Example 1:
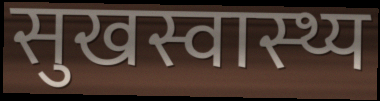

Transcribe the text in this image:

सुखस्वास्थ्य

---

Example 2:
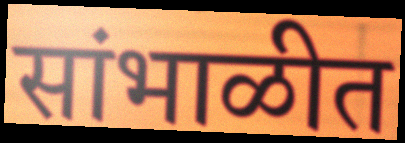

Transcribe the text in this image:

सांभाळीत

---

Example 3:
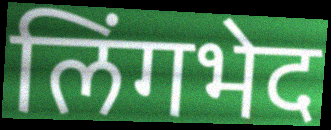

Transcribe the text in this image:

लिंगभेद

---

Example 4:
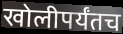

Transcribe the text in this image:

खोलीपर्यंतच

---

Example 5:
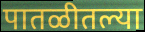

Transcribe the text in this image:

पातळीतल्या